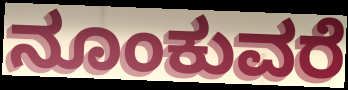
ನೂಂಕುವರೆ